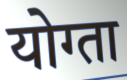
योग्ता